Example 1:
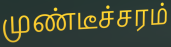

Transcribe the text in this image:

முண்டீச்சரம்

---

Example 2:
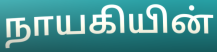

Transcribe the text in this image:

நாயகியின்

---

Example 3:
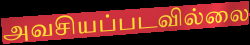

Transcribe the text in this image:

அவசியப்படவில்லை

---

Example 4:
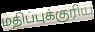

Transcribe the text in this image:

மதிப்புக்குரிய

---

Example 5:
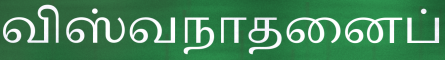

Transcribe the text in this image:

விஸ்வநாதனைப்